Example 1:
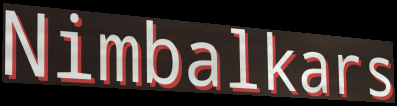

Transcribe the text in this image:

Nimbalkars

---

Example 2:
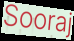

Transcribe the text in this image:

Sooraj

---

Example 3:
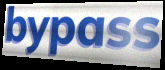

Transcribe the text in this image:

bypass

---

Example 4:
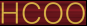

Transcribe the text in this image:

HCOO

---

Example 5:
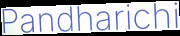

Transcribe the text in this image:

Pandharichi